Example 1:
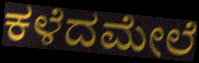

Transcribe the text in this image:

ಕಳೆದಮೇಲೆ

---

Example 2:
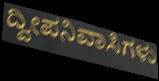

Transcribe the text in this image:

ದ್ವೀಪನಿವಾಸಿಗಳು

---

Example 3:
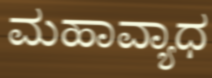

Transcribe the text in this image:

ಮಹಾವ್ಯಾಧ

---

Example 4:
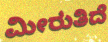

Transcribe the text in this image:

ಮೀರುತಿದೆ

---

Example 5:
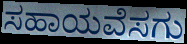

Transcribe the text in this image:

ಸಹಾಯವೆಸಗು